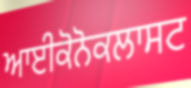
ਆਈਕੋਨੋਕਲਾਸਟ